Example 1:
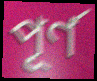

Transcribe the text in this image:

পূর্ণ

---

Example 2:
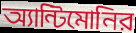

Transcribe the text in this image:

অ্যান্টিমোনির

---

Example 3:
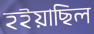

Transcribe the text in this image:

হইয়াছিল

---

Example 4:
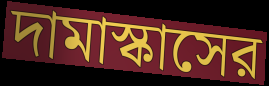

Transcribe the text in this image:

দামাস্কাসের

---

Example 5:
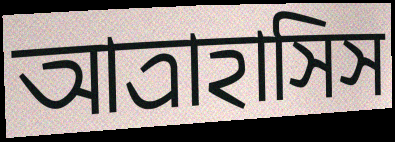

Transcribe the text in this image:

আত্রাহাসিস